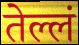
तेल्लं